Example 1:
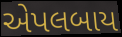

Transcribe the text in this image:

એપલબાય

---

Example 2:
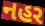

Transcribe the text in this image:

નહર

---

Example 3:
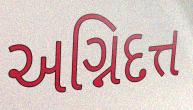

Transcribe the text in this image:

અગ્નિદત્ત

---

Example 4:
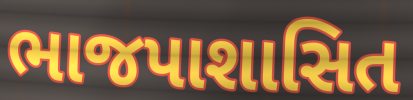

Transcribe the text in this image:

ભાજપાશાસિત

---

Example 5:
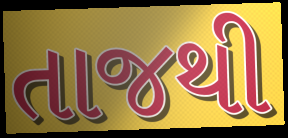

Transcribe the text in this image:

તાજથી